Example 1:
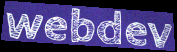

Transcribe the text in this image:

webdev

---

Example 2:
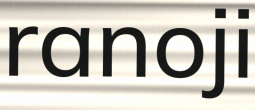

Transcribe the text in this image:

ranoji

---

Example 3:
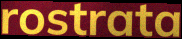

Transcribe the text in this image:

rostrata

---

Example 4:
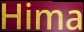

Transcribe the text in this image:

Hima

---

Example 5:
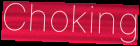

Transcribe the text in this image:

Choking